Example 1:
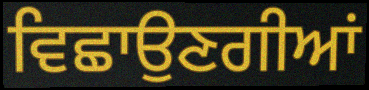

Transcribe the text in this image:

ਵਿਛਾਉਣਗੀਆਂ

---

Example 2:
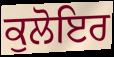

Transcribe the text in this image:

ਕੁਲੋਇਰ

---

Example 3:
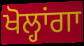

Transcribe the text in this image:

ਖੋਲ੍ਹਾਂਗਾ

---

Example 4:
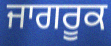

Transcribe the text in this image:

ਜਾਗਰੂਕ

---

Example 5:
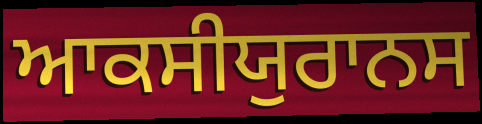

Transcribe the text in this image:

ਆਕਸੀਯੁਰਾਨਸ